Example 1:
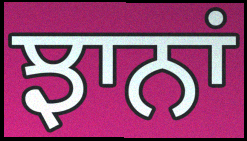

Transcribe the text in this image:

ਝਾਨਾਂ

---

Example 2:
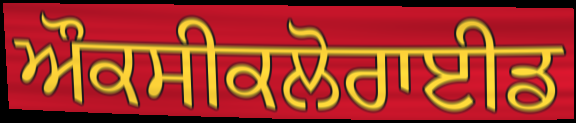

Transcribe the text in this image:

ਔਕਸੀਕਲੋਰਾਈਡ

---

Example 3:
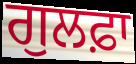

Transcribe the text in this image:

ਗੁਲਫ਼ਾ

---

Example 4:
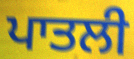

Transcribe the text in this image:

ਪਾਤਲੀ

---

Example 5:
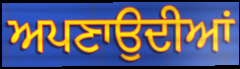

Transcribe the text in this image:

ਅਪਣਾਉਦੀਆਂ